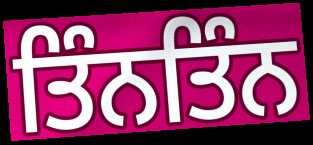
ਤਿੰਨਤਿੰਨ